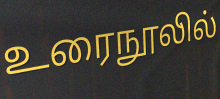
உரைநூலில்